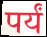
पर्यं